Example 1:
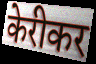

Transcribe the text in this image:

केरीकर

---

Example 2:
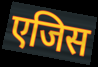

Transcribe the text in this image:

एजिस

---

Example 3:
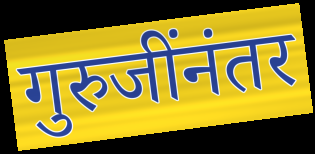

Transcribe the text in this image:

गुरुजींनंतर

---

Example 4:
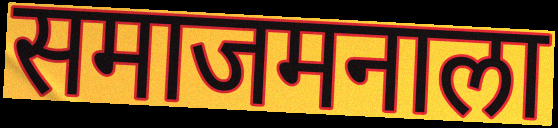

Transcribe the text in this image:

समाजमनाला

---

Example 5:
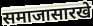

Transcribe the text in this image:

समाजासारखे